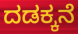
ದಡಕ್ಕನೆ